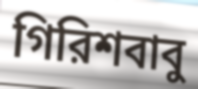
গিরিশবাবু